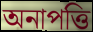
অনাপত্তি